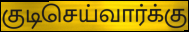
குடிசெய்வார்க்கு